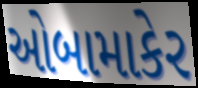
ઓબામાકેર